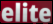
elite